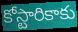
కోస్టారికాకు